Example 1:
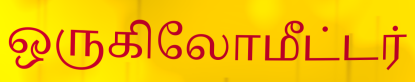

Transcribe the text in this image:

ஒருகிலோமீட்டர்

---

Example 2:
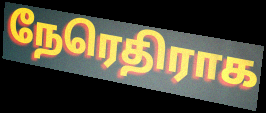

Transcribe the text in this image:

நேரெதிராக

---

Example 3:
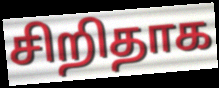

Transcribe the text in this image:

சிறிதாக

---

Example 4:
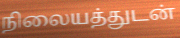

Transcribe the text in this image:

நிலையத்துடன்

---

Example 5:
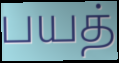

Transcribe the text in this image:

பயத்